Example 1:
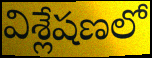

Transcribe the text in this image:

విశ్లేషణలో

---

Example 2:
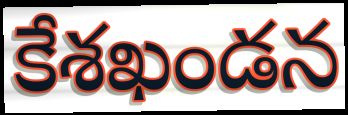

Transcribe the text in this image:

కేశఖండన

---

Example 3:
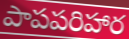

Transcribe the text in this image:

పాపపరిహార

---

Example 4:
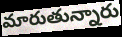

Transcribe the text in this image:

మారుతున్నారు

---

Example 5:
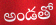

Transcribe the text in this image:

అండతో